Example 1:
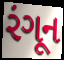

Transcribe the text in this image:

રંગૂન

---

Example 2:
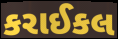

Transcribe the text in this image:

કરાઈકલ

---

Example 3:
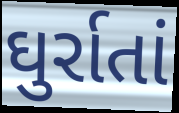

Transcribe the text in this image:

ઘુર્રાતાં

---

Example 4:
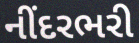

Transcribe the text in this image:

નીંદરભરી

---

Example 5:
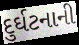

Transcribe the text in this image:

દુર્ઘટનાની